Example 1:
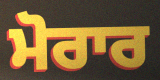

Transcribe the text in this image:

ਮੋਰਾਰ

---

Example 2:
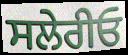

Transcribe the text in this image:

ਸਲੇਰੀਓ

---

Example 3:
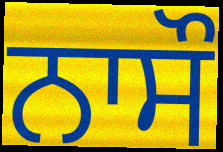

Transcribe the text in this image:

ਨਾਸੌ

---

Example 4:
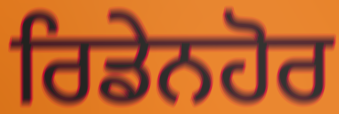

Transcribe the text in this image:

ਰਿਡੇਨਹੋਰ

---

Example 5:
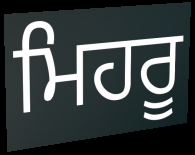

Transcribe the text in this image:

ਮਿਹਰੂ